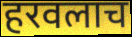
हरवलाच